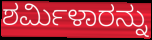
ಶರ್ಮಿಳಾರನ್ನು